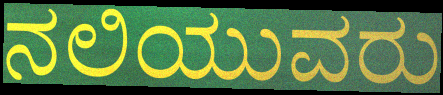
ನಲಿಯುವರು